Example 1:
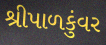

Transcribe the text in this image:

શ્રીપાળકુંવર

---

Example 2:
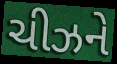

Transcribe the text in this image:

ચીઝને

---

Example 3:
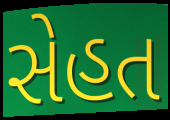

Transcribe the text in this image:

સેહત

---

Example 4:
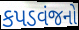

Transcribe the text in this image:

કપડવંજનો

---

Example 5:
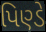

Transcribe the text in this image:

પિણ્ડે